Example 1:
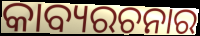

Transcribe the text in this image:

କାବ୍ୟରଚନାର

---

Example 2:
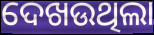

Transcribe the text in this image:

ଦେଖଉଥିଲା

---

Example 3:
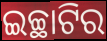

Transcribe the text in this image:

ଇଚ୍ଛାଟିର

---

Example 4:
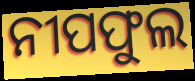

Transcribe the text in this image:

ନୀପଫୁଲ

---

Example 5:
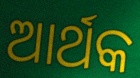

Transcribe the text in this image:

ଆର୍ଥକ